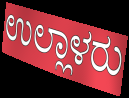
ಉಲ್ಲಾಳರು